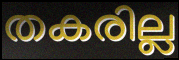
തകരില്ല